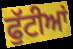
ਫੁੱਟੀਆਂ